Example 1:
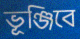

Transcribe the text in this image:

ভূঞ্জিবে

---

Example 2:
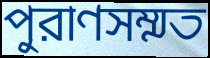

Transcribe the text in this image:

পুরাণসম্মত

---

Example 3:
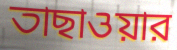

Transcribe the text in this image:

তাছাওয়ার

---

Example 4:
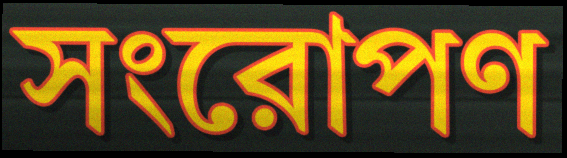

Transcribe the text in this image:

সংরোপণ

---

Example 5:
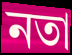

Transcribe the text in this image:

নতা